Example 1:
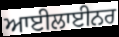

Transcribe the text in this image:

ਆਈਲਾਈਨਰ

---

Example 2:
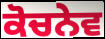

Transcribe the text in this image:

ਕੋਚਨੇਵ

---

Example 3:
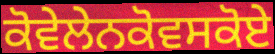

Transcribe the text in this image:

ਕੋਵੇਲੇਨਕੋਵਸਕੋਏ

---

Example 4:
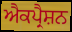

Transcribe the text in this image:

ਐਕਪ੍ਰੈਸ਼ਨ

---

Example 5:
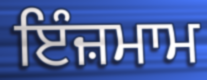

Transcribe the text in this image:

ਇੰਜ਼ਮਾਮ